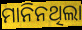
ମାନିନଥିଲା